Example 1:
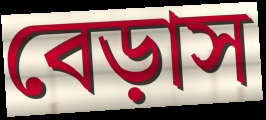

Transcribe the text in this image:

বেড়াস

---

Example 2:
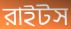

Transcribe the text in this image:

রাইটস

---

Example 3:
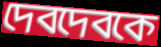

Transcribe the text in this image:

দেবদেবকে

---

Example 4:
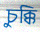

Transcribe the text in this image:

চুক্কি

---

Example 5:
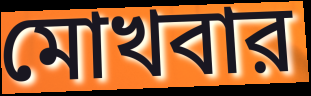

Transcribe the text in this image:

মোখবার